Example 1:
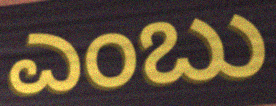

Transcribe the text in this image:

ಎಂಬು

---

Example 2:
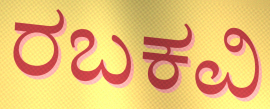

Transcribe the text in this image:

ರಬಕವಿ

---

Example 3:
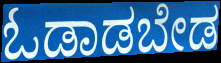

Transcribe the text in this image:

ಓಡಾಡಬೇಡ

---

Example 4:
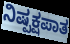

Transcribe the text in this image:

ನಿಷ್ಪಕ್ಷಪಾತ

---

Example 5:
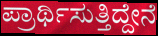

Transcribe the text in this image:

ಪ್ರಾರ್ಥಿಸುತ್ತಿದ್ದೇನೆ